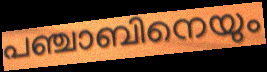
പഞ്ചാബിനെയും